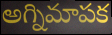
అగ్నిమాపక